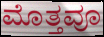
ಮೊತ್ತವೂ